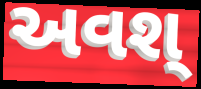
અવશ્